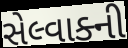
સેલ્વાક્ની